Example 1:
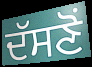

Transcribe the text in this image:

ਦੱਸਣੋਂ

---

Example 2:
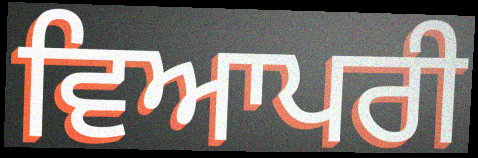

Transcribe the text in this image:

ਵਿਆਪਰੀ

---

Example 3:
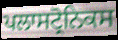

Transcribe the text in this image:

ਪਲਾਸਟ੍ਰੋਨਿਕਸ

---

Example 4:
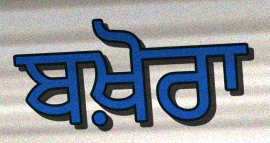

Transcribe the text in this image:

ਬਖ਼ੋਰਾ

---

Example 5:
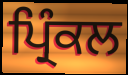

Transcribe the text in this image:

ਪ੍ਰਿੰਕਲ